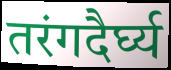
तरंगदैर्घ्य